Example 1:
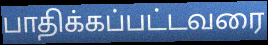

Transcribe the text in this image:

பாதிக்கப்பட்டவரை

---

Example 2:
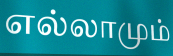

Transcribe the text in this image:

எல்லாமும்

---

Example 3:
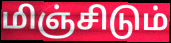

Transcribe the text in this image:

மிஞ்சிடும்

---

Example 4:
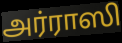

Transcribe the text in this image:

அர்ராஸி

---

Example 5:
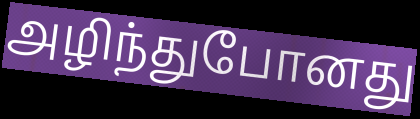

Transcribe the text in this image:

அழிந்துபோனது